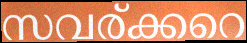
സവര്ക്കറെ